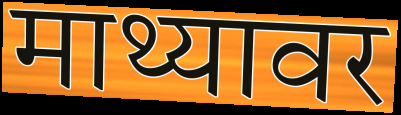
माथ्यावर